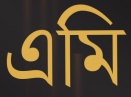
এমি